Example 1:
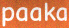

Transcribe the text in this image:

paaka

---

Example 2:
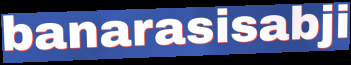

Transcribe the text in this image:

banarasisabji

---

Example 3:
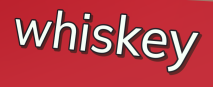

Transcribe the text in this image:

whiskey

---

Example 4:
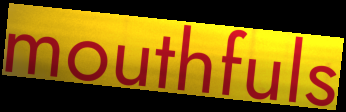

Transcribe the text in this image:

mouthfuls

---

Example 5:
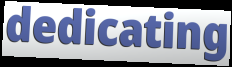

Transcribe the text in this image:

dedicating